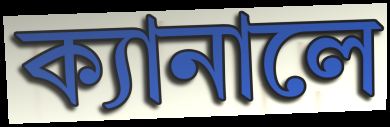
ক্যানালে